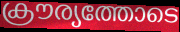
ക്രൗര്യത്തോടെ